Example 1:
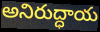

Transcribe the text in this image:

అనిరుద్ధాయ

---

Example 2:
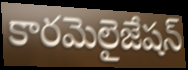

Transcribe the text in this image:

కారమెలైజేషన్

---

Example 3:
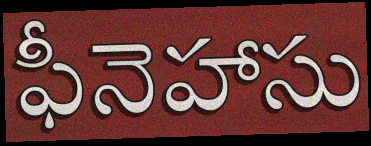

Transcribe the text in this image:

ఫీనెహాసు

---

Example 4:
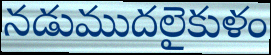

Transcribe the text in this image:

నడుముదలైకుళం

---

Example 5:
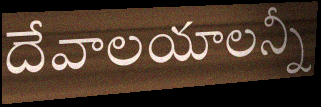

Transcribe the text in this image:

దేవాలయాలన్నీ